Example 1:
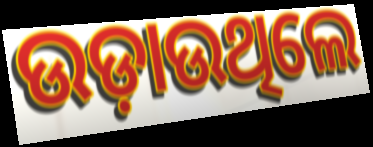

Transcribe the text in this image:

ଉଡ଼ାଉଥିଲେ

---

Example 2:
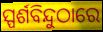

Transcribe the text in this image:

ସ୍ପର୍ଶବିନ୍ଦୁଠାରେ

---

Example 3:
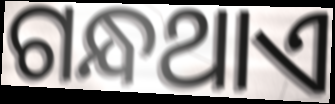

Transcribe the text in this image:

ଗନ୍ଧଥାଏ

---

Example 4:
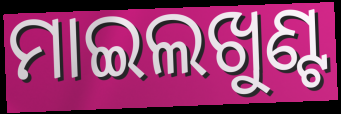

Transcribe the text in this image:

ମାଇଲଖୁଣ୍ଟ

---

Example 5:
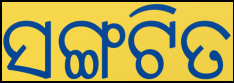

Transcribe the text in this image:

ସଙ୍ଗଟିତ